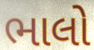
ભાલો